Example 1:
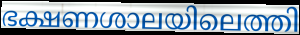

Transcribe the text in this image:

ഭക്ഷണശാലയിലെത്തി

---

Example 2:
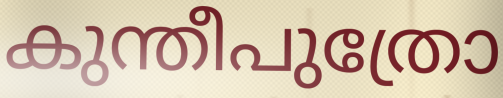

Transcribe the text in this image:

കുന്തീപുത്രോ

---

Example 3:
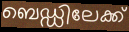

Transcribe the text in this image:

ബെഡ്ഡിലേക്ക്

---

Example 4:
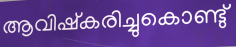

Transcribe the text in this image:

ആവിഷ്കരിച്ചുകൊണ്ടു്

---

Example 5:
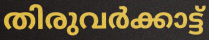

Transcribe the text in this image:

തിരുവർക്കാട്ട്